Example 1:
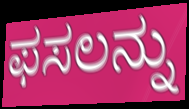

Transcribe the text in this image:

ಫಸಲನ್ನು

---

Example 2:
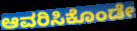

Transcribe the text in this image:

ಆವರಿಸಿಕೊಂಡೇ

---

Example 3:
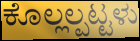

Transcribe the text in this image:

ಕೊಲ್ಲಲ್ಪಟ್ಟಳು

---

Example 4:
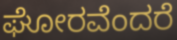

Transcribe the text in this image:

ಘೋರವೆಂದರೆ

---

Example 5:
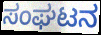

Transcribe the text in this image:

ಸಂಘಟನ